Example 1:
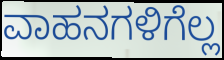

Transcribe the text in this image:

ವಾಹನಗಳಿಗೆಲ್ಲ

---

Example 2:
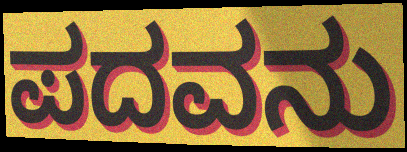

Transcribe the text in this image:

ಪದವನು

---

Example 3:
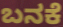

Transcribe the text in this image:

ಬನಕೆ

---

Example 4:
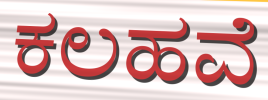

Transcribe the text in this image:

ಕಲಹವೆ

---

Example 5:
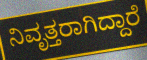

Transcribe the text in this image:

ನಿವೃತ್ತರಾಗಿದ್ದಾರೆ